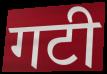
गटी